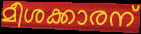
മീശക്കാരന്